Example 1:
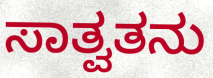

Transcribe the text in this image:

ಸಾತ್ವತನು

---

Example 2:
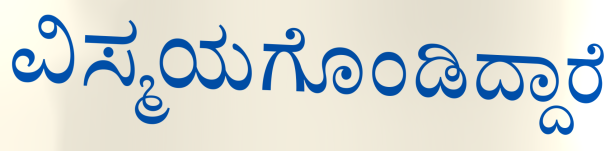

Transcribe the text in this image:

ವಿಸ್ಮಯಗೊಂಡಿದ್ದಾರೆ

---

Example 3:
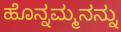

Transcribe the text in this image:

ಹೊನ್ನಮ್ಮನನ್ನು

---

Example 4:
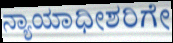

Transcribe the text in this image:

ನ್ಯಾಯಾಧೀಶರಿಗೇ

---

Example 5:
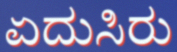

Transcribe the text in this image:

ಏದುಸಿರು